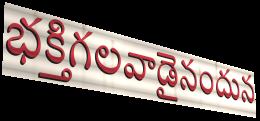
భక్తిగలవాడైనందున